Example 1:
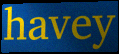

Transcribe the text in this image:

havey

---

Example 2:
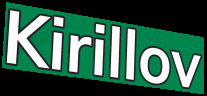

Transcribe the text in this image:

Kirillov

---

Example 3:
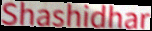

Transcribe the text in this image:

Shashidhar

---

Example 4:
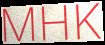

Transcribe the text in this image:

MHK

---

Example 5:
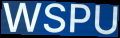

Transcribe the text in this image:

WSPU